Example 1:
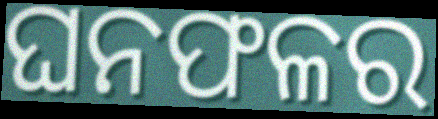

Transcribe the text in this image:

ଘନଫଳର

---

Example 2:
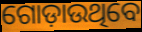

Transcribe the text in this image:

ଗୋଡ଼ାଉଥିବେ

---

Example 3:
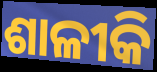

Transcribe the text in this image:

ଶାଳୀକି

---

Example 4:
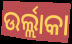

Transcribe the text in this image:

ଉର୍ଲ୍ଲାକା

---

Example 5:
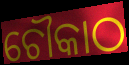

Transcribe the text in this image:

ଚୌକାଠ